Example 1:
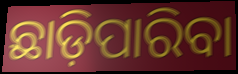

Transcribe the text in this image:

ଛାଡ଼ିପାରିବା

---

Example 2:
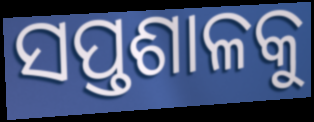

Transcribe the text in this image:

ସପ୍ତଶାଳକୁ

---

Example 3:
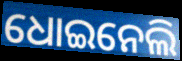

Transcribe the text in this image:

ଧୋଇନେଲି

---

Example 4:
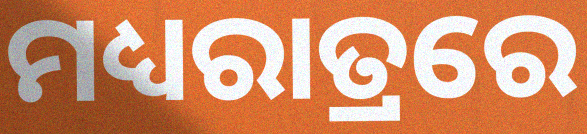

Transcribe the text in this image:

ମଧ୍ୟରାତ୍ରରେ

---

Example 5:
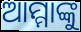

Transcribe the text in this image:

ଆମ୍ମାଙ୍କୁ